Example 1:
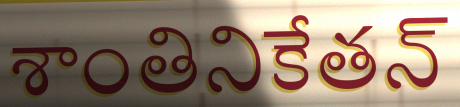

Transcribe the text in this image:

శాంతినికేతన్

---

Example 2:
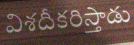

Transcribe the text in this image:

విశదీకరిస్తాడు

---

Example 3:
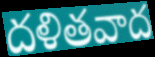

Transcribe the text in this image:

దళితవాద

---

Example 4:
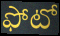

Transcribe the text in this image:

ఫోటో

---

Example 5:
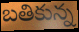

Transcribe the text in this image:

బతికున్న